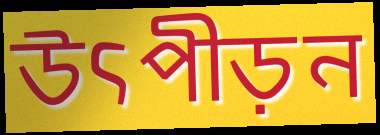
উৎপীড়ন